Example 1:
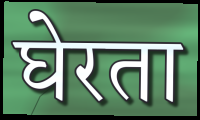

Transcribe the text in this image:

घेरता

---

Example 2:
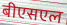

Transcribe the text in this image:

बीएसएल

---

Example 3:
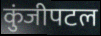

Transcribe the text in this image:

कुंजीपटल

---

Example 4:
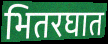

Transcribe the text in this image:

भितरघात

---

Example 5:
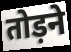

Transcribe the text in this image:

तोड़ने